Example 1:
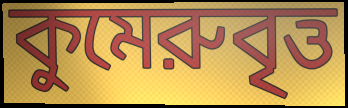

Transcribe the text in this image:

কুমেরুবৃত্ত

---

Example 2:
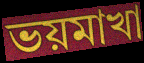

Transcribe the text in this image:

ভয়মাখা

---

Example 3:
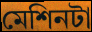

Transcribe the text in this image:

মেশিনটা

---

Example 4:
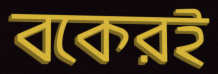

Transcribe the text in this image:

বকেরই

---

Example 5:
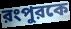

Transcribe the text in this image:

রংপুরকে